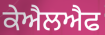
ਕੇਐਲਐਫ